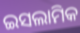
ଇସଲାମିକ